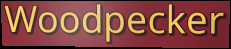
Woodpecker